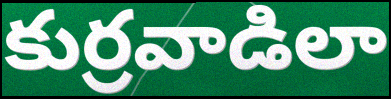
కుర్రవాడిలా